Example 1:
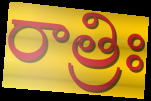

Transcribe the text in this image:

రాత్రిః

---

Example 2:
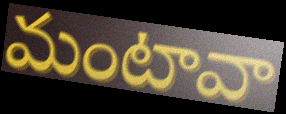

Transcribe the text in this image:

మంటావా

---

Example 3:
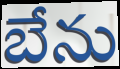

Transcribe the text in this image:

బేను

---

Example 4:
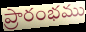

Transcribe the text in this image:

ప్రారంభము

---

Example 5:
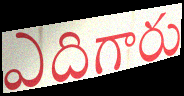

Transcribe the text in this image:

ఎదిగారు